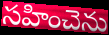
సహించెను